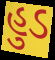
હુડ